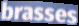
brasses